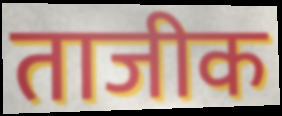
ताजीक